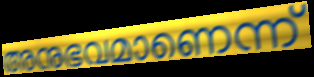
അനുഭവമാണെന്ന്